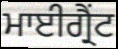
ਮਾਈਗ੍ਰੈਂਟ